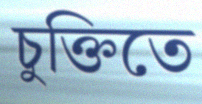
চুক্তিতে